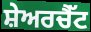
ਸ਼ੇਅਰਚੈੱਟ